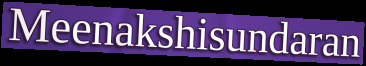
Meenakshisundaran